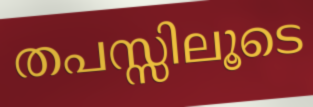
തപസ്സിലൂടെ